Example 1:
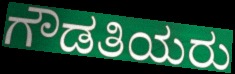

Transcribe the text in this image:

ಗೌಡತಿಯರು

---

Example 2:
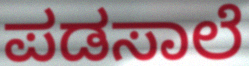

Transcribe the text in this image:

ಪಡಸಾಲೆ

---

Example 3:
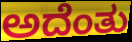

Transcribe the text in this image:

ಅದೆಂತು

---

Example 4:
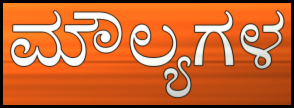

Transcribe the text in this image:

ಮೌಲ್ಯಗಳ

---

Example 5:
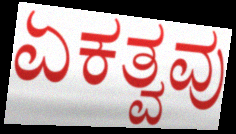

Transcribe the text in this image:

ಏಕತ್ವವು